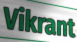
Vikrant